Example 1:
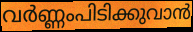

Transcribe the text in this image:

വർണ്ണംപിടിക്കുവാൻ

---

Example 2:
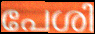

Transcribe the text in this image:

പേശി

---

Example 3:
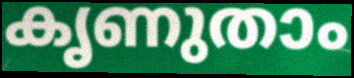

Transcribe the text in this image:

കൃണുതാം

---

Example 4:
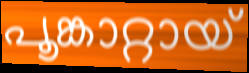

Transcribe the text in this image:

പൂങ്കാറ്റായ്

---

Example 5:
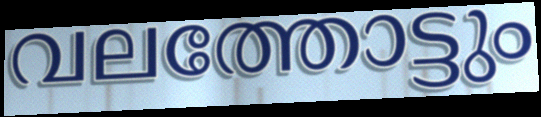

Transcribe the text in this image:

വലത്തോട്ടും